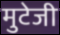
मुटेजी